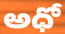
అధో